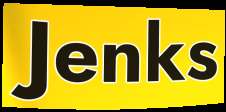
Jenks